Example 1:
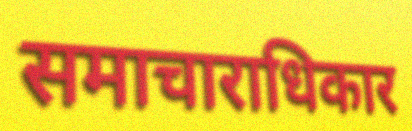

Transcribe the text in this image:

समाचाराधिकार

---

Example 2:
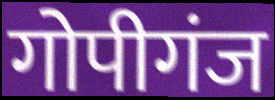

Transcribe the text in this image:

गोपीगंज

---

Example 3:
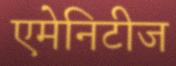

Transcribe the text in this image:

एमेनिटीज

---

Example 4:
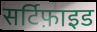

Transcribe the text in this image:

सर्टिफ़ाइड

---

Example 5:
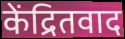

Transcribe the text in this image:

केंद्रितवाद